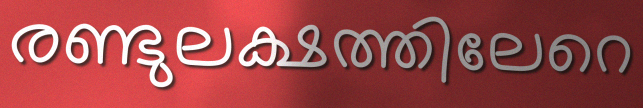
രണ്ടുലക്ഷത്തിലേറെ